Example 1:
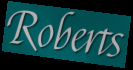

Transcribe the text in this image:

Roberts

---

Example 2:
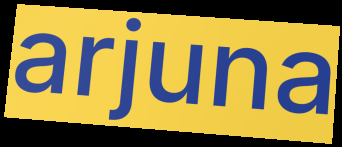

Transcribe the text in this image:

arjuna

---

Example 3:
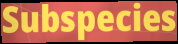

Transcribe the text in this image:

Subspecies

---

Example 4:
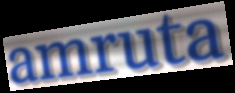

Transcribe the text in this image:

amruta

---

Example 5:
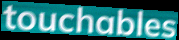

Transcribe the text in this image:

touchables